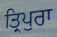
ਤ੍ਰਿਪੁਰਾ